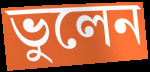
ভুলেন